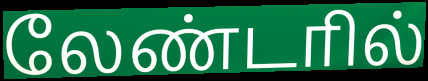
லேண்டரில்